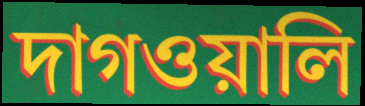
দাগওয়ালি